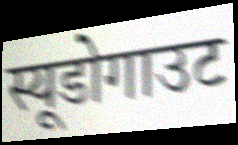
स्यूडोगाउट